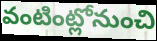
వంటింట్లోనుంచి